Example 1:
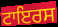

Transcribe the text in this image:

ਟਾਇਰਸ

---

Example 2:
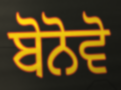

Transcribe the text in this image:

ਬੋਨੋਵੋ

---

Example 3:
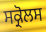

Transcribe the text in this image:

ਸਕ੍ਰੋਲਸ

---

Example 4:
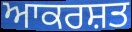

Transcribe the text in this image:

ਆਕਰਸ਼ਤ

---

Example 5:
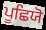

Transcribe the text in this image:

ਪੂਛਿਯੋ